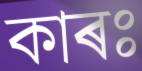
কাৰঃ